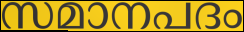
സമാനപദം